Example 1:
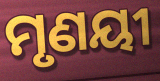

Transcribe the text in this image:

ମୃଣୟୀ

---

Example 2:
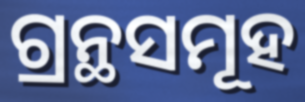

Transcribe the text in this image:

ଗ୍ରନ୍ଥସମୂହ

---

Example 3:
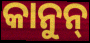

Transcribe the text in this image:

କାନୁନ୍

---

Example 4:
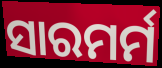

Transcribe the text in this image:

ସାରମର୍ମ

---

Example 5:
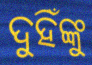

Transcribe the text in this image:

ଦୁହିଁଙ୍କୁ